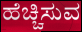
ಹೆಚ್ಚಿಸುವ